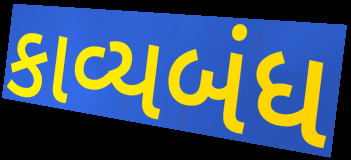
કાવ્યબંધ